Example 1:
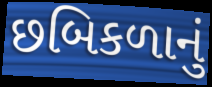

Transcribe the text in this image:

છબિકળાનું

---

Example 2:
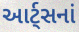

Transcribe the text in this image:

આર્ટ્સનાં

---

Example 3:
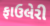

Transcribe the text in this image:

ફાઉલેરી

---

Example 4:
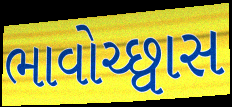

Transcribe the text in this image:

ભાવોચ્છ્વાસ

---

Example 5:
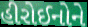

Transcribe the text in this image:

હીરોઈનોને